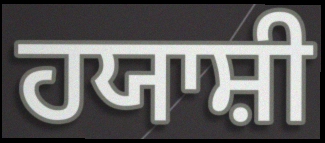
ਹਯਾਸ਼ੀ